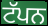
ਟੱਪਨ